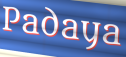
Padaya